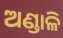
ଅଣ୍ଡାଳି